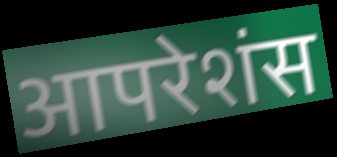
आपरेशंस